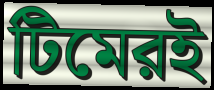
টিমেরই